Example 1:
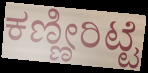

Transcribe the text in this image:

ಕಣ್ಣೀರಿಟ್ಟೆ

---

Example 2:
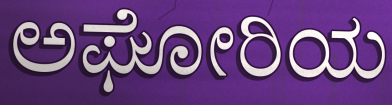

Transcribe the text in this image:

ಅಘೋರಿಯ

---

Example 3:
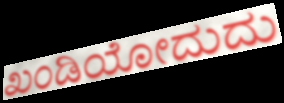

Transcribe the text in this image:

ಖಂಡಿಯೋದುದು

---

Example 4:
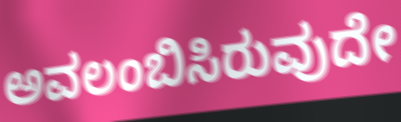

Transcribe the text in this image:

ಅವಲಂಬಿಸಿರುವುದೇ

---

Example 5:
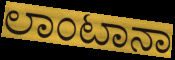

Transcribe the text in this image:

ಲಾಂಟಾನಾ